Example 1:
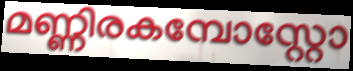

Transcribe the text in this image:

മണ്ണിരകമ്പോസ്റ്റോ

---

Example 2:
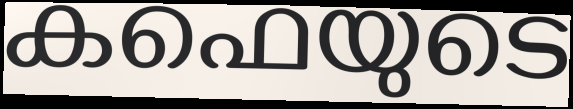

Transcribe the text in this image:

കഫെയുടെ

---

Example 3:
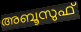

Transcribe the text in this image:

അബൂസുഫ്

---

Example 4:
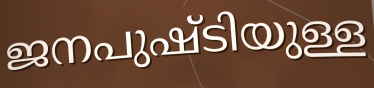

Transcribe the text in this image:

ജനപുഷ്ടിയുള്ള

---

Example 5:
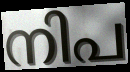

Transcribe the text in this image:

നിപ